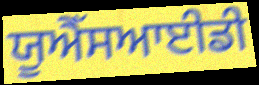
ਯੂਐੱਸਆਈਡੀ